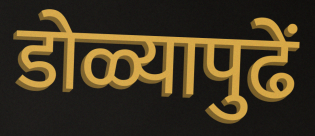
डोळ्यापुढें